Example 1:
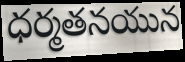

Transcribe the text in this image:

ధర్మతనయున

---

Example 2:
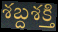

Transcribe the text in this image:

శబ్దశక్తి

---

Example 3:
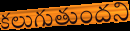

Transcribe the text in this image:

కలుగుతుందని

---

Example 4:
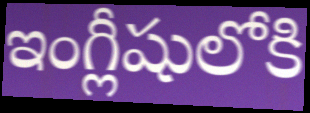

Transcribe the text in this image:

ఇంగ్లీషులోకి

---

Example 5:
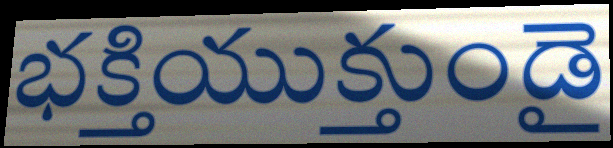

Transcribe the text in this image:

భక్తియుక్తుండై